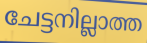
ചേട്ടനില്ലാത്ത